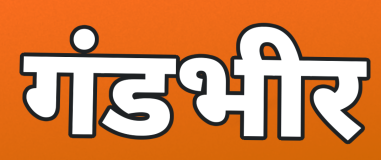
गंडभीर